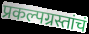
प्रकल्पग्रस्तांचं